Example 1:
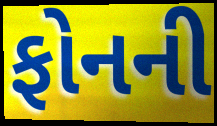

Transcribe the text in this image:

ફોનની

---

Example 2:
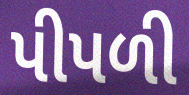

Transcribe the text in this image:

પીપળી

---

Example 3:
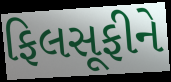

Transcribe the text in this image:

ફિલસૂફીને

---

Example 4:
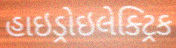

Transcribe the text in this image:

હાઇડ્રોઇલેક્ટ્રિક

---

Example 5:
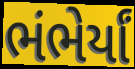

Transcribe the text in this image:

ભંભેર્યાં